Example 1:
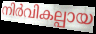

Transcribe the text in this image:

നിർവികല്പായ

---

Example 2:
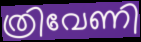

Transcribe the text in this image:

ത്രിവേണി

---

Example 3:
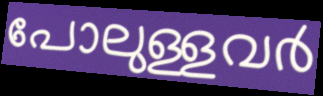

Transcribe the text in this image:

പോലുള്ളവർ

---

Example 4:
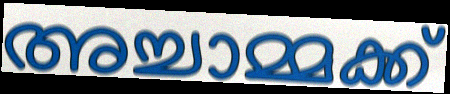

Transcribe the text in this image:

അച്ചാമ്മക്ക്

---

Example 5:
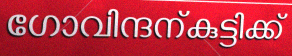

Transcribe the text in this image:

ഗോവിന്ദന്കുട്ടിക്ക്